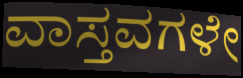
ವಾಸ್ತವಗಳೇ